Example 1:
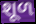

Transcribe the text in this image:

શૂળ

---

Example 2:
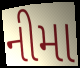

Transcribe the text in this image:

નીમા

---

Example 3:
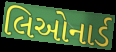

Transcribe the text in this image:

લિઓનાર્ડ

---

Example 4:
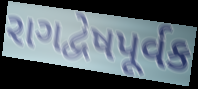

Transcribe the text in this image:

રાગદ્વેષપૂર્વક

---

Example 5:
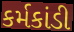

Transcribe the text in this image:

કર્મકાંડી